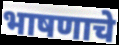
भाषणाचे